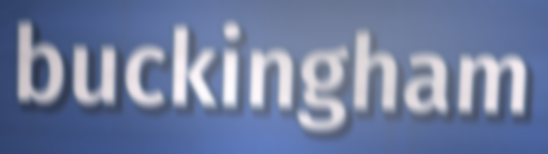
buckingham